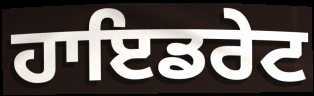
ਹਾਇਡਰੇਟ